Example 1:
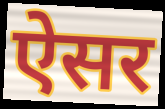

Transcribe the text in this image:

ऐसर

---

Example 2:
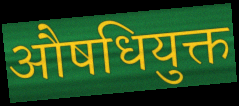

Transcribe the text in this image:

औषधियुक्त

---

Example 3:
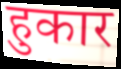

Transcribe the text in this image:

हुकार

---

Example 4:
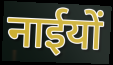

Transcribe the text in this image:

नाईयों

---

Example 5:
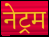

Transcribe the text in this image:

नेट्रम